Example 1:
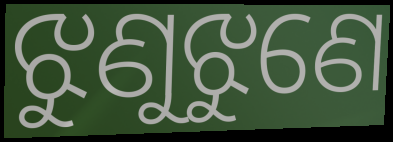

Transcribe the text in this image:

ଝୁଣୁଝୁଣେ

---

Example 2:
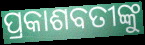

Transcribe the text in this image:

ପ୍ରକାଶବତୀଙ୍କୁ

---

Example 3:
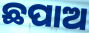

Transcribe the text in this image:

ଛପାଅ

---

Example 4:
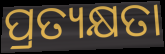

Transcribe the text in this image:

ପ୍ରତ୍ୟକ୍ଷତା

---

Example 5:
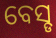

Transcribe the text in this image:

ବେସ୍ଡ